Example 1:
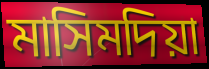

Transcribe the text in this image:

মাসিমদিয়া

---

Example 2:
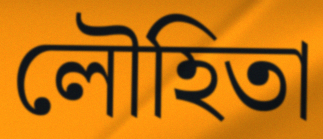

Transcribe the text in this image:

লৌহিতা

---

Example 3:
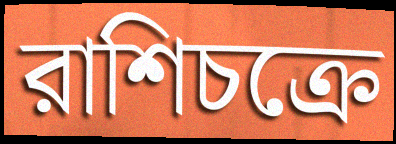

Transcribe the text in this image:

রাশিচক্রে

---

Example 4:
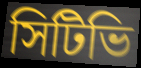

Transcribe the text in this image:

সিটিভি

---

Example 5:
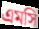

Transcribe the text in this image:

এমসি